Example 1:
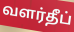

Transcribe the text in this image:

வளர்தீப்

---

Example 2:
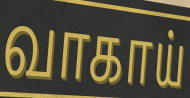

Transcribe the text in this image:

வாகாய்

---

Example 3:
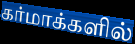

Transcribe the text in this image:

கர்மாக்களில்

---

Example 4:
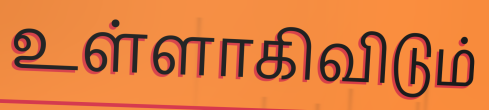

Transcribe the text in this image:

உள்ளாகிவிடும்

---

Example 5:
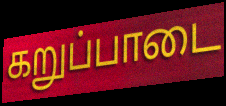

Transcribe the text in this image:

கறுப்பாடை